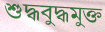
শুদ্ধবুদ্ধমুক্ত